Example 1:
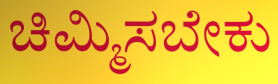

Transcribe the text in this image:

ಚಿಮ್ಮಿಸಬೇಕು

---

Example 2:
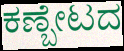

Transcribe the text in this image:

ಕಣ್ಬೇಟದ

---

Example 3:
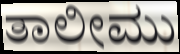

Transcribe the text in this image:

ತಾಲೀಮು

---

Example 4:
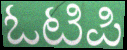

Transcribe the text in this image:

ಓಟಿಪಿ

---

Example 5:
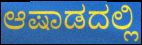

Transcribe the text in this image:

ಆಷಾಡದಲ್ಲಿ